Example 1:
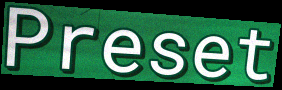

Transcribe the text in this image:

Preset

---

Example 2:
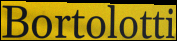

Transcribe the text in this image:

Bortolotti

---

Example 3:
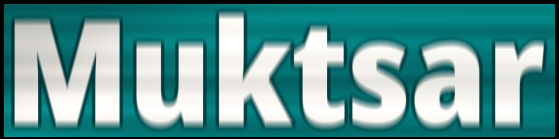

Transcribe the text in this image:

Muktsar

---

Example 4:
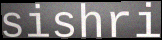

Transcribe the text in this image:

sishri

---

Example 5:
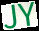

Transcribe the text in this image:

JY